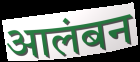
आलंबन